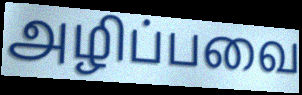
அழிப்பவை